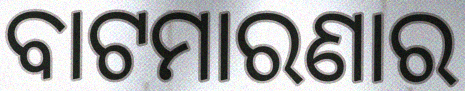
ବାଟମାରଣାର